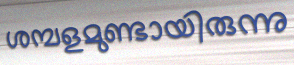
ശമ്പളമുണ്ടായിരുന്നു